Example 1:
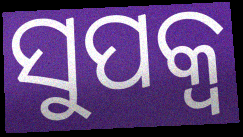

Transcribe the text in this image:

ସୁପକ୍ବ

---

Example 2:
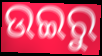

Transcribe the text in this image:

ଉଇରୁ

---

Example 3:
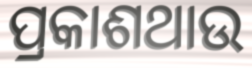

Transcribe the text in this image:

ପ୍ରକାଶଥାଉ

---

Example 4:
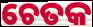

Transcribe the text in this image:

ଚେତକ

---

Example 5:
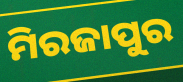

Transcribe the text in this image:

ମିରଜାପୁର